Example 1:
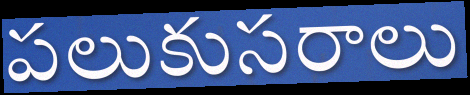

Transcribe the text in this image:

పలుకుసరాలు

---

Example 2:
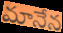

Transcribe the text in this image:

మానేన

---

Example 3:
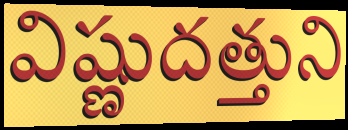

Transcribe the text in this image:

విష్ణుదత్తుని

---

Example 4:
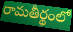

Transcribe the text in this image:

రామతీర్థంలో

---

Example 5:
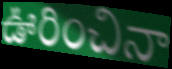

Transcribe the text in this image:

ఊరించినా